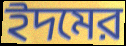
ইদমের